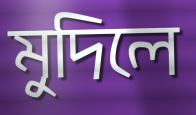
মুদিলে